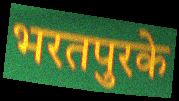
भरतपुरके